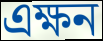
এক্ষন